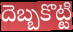
దెబ్బకొట్టి